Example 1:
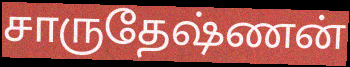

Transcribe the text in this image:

சாருதேஷ்ணன்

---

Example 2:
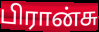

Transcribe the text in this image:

பிரான்சு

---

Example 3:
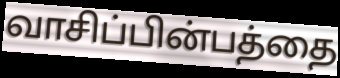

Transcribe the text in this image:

வாசிப்பின்பத்தை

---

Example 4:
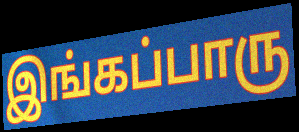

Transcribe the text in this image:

இங்கப்பாரு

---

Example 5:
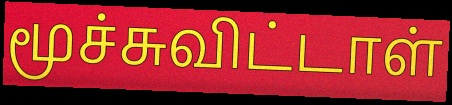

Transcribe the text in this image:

மூச்சுவிட்டாள்